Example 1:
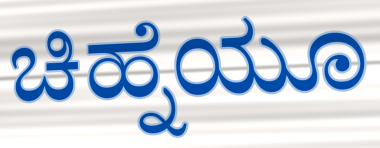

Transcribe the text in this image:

ಚಿಹ್ನೆಯೂ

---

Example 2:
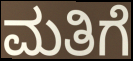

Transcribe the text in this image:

ಮತಿಗೆ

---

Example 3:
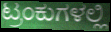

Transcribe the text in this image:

ಟ್ರಂಕುಗಳಲ್ಲಿ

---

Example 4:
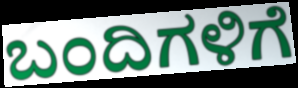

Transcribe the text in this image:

ಬಂದಿಗಳಿಗೆ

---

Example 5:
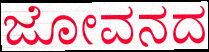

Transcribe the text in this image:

ಜೋವನದ